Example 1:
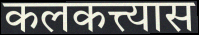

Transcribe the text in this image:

कलकत्त्यास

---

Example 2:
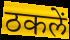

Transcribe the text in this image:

ठकलें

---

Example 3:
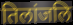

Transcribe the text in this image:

तिलांजलि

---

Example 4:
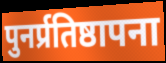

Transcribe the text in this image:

पुनर्प्रतिष्ठापना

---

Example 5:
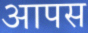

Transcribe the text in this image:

आपस